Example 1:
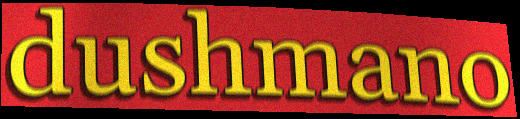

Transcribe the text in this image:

dushmano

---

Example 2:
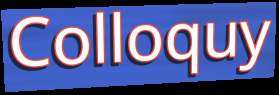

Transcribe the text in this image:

Colloquy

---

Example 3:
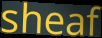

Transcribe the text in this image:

sheaf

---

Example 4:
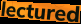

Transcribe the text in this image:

lectured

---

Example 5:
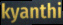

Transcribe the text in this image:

kyanthi